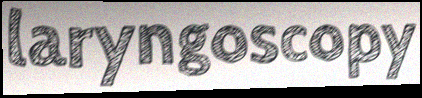
laryngoscopy